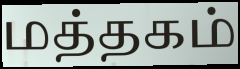
மத்தகம்